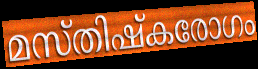
മസ്തിഷ്കരോഗം